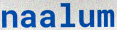
naalum